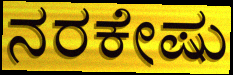
ನರಕೇಷು